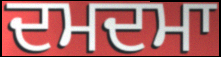
ਦਮਦਮਾ